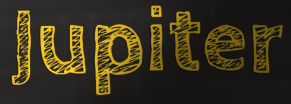
Jupiter